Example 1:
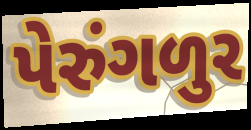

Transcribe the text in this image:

પેરુંગળુર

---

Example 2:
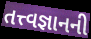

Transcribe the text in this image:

તત્ત્વજ્ઞાનની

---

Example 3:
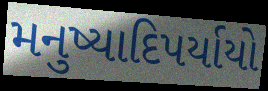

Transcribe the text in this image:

મનુષ્યાદિપર્યાયો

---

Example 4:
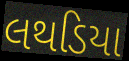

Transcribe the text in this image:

લથડિયા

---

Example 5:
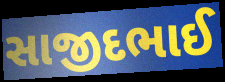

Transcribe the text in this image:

સાજીદભાઈ